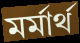
মর্মার্থ